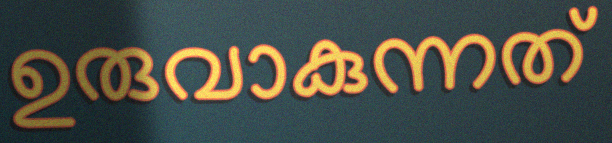
ഉരുവാകുന്നത്